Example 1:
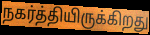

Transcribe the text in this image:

நகர்த்தியிருக்கிறது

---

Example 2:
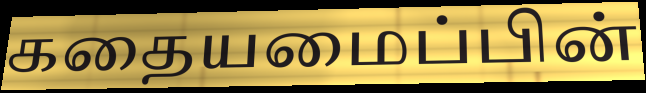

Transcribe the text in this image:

கதையமைப்பின்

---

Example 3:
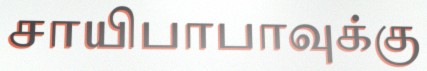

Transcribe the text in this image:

சாயிபாபாவுக்கு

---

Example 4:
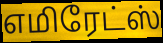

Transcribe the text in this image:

எமிரேட்ஸ்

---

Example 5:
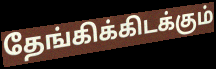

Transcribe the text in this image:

தேங்கிக்கிடக்கும்